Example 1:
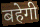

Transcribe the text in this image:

बहेगी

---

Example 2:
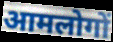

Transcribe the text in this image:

आमलोगों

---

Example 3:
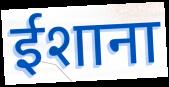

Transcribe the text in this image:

ईशाना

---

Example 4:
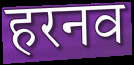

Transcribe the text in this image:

हरनव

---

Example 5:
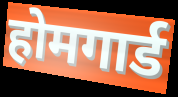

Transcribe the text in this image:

होमगार्ड